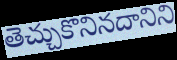
తెచ్చుకొనినదానిని